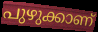
പുഴുക്കാണ്